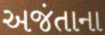
અજંતાના